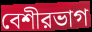
বেশীরভাগ